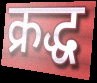
क्रद्ध